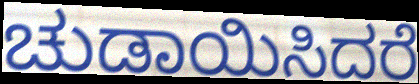
ಚುಡಾಯಿಸಿದರೆ